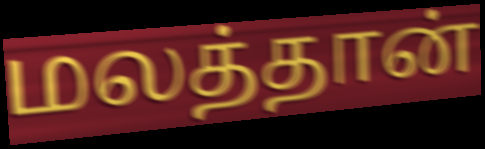
மலத்தான்